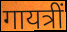
गायत्रीं